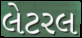
લેટરલ